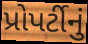
પ્રોપર્ટીનું